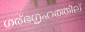
ഗര്ഭഗൃഹത്തില്